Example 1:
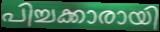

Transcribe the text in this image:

പിച്ചക്കാരായി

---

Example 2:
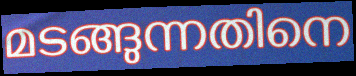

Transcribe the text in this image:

മടങ്ങുന്നതിനെ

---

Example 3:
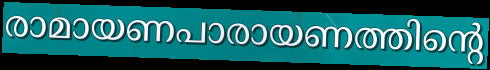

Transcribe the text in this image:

രാമായണപാരായണത്തിന്റെ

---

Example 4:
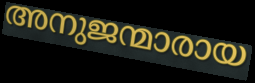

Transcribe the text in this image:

അനുജന്മാരായ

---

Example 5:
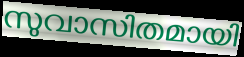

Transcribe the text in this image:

സുവാസിതമായി